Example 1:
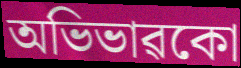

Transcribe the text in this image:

অভিভাৱকো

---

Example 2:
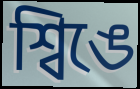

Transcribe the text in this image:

শ্বিঙে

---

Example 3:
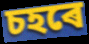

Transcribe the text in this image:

চহৰে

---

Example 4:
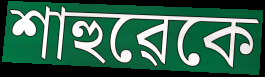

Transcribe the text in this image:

শাহুৱেকে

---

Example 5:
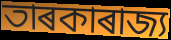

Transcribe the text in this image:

তাৰকাৰাজ্য